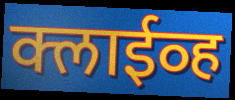
क्लाईव्ह